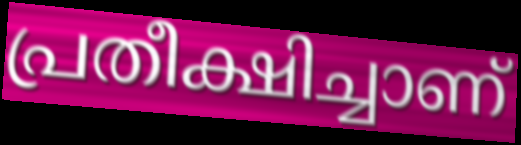
പ്രതീക്ഷിച്ചാണ്